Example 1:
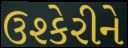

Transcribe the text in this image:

ઉશ્કેરીને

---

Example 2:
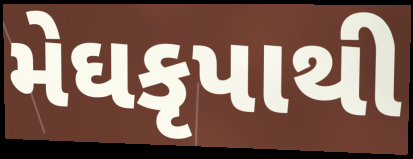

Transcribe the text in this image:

મેઘકૃપાથી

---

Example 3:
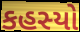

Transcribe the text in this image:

કહસ્યો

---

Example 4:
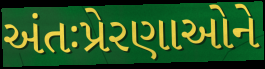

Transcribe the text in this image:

અંતઃપ્રેરણાઓને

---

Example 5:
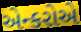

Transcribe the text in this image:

એન્કરોએ